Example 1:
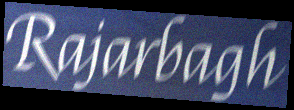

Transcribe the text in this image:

Rajarbagh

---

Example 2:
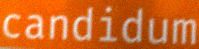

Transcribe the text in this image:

candidum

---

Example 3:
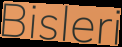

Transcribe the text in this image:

Bisleri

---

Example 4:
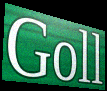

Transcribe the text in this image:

Goll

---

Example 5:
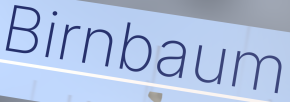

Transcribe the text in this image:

Birnbaum